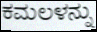
ಕಮಲಳನ್ನು